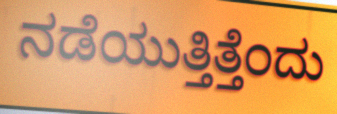
ನಡೆಯುತ್ತಿತ್ತೆಂದು